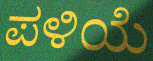
ಪಳಿಯೆ